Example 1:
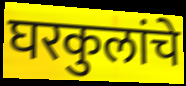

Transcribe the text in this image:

घरकुलांचे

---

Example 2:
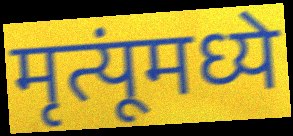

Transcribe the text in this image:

मृत्यूंमध्ये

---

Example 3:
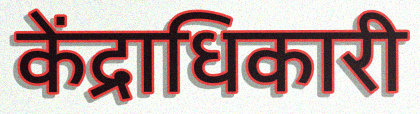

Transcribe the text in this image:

केंद्राधिकारी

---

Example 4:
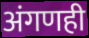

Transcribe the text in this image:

अंगणही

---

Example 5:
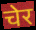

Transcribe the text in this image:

चेर